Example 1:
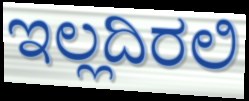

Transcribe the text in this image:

ಇಲ್ಲದಿರಲಿ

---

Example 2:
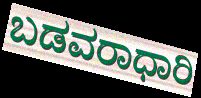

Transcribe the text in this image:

ಬಡವರಾಧಾರಿ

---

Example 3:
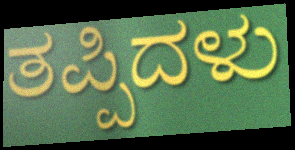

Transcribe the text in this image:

ತಪ್ಪಿದಳು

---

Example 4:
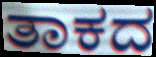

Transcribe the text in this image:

ತಾಕದ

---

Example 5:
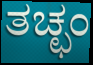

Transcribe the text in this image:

ತಚ್ಛಂ